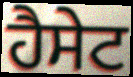
ਹੈਸੇਟ